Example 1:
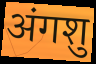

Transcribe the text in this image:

अंगशु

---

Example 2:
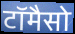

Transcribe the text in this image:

टॉमैसो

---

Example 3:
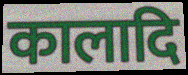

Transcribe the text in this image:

कालादि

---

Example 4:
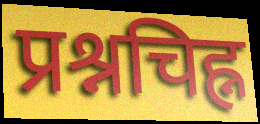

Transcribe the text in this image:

प्रश्नचिह्न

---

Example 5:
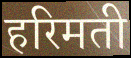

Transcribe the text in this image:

हरिमती